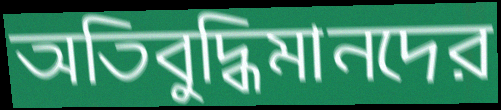
অতিবুদ্ধিমানদের